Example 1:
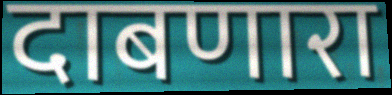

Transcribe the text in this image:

दाबणारा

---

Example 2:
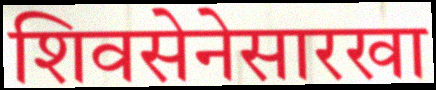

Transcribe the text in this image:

शिवसेनेसारखा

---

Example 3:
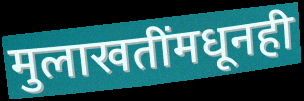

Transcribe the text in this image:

मुलाखतींमधूनही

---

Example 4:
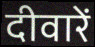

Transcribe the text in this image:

दीवारें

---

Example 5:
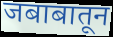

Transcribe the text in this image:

जबाबातून